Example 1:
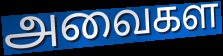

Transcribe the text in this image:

அவைகள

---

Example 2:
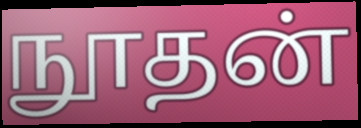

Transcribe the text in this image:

நூதன்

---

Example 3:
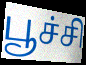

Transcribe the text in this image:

பூச்சி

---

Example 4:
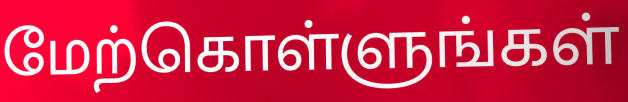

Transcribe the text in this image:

மேற்கொள்ளுங்கள்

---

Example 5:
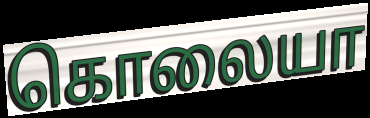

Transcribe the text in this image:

கொலையா